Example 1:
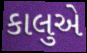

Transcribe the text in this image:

કાલુએ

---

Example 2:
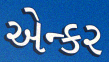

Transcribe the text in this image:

એન્કર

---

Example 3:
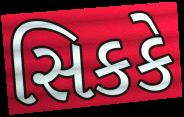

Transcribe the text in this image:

સિકકે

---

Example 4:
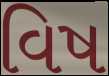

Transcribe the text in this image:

વિષ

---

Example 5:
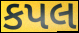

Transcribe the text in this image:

કપલ